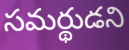
సమర్థుడని